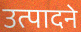
उत्पादने